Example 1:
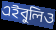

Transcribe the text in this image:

এইবুলিও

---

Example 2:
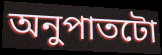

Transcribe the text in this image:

অনুপাতটো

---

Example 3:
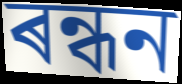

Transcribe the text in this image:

ৰন্ধন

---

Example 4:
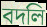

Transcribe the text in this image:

বদলি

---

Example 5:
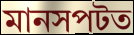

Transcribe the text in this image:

মানসপটত